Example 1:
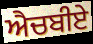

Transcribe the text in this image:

ਐਚਬੀਏ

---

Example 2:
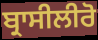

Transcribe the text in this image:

ਬ੍ਰਾਸੀਲੀਰੋ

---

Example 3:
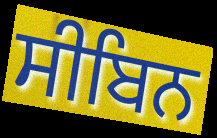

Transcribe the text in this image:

ਸੀਬਿਨ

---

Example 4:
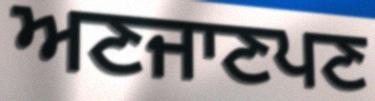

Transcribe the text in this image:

ਅਣਜਾਣਪਣ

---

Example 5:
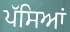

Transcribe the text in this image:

ਪੱਸਿਆਂ